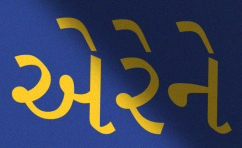
એરેને